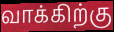
வாக்கிற்கு